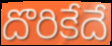
దొరికేదే